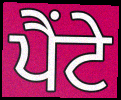
ਪੈਂਟੇ